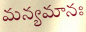
మన్యమానః